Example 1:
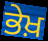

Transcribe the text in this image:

ਭੇਖ਼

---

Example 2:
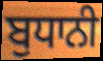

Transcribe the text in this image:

ਬੁਧਾਨੀ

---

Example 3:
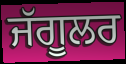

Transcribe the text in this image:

ਜੱਗੂਲਰ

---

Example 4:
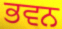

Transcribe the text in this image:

ਭਵਨ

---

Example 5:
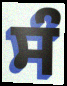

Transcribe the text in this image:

ਸੰ